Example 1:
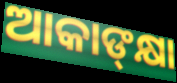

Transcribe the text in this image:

ଆକାଙ୍‌କ୍ଷା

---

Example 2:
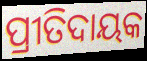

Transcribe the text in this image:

ପ୍ରୀତିଦାୟକ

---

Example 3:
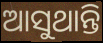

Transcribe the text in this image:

ଆସୁଥାନ୍ତି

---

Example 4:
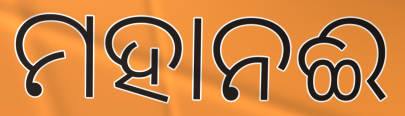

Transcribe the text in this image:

ମହାନଈ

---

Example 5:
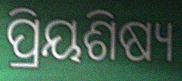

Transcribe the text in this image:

ପ୍ରିୟଶିଷ୍ୟ